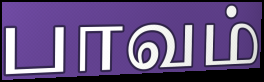
பாவம்